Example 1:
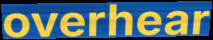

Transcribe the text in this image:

overhear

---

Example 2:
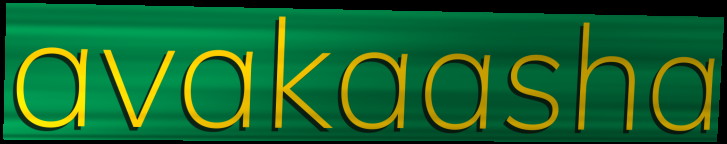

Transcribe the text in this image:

avakaasha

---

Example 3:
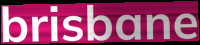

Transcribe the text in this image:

brisbane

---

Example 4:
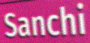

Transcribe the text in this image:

Sanchi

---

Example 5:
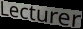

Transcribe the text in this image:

Lecturer